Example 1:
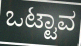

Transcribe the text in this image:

ಒಟ್ಟಾವ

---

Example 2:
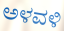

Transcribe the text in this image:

ಅಳವಳಿ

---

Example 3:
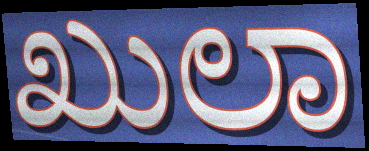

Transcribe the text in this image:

ಖುಲಾ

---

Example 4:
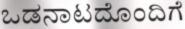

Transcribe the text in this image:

ಒಡನಾಟದೊಂದಿಗೆ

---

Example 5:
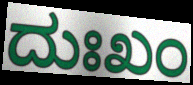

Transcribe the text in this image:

ದುಃಖಂ